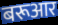
बरूआर